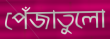
পেঁজাতুলো